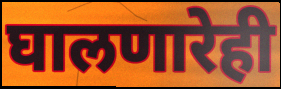
घालणारेही